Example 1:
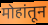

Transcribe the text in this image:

मोहांतून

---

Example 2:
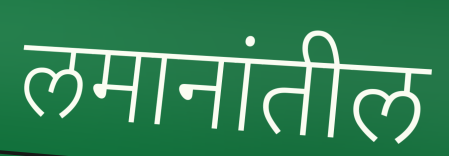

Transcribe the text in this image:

लमानांतील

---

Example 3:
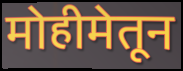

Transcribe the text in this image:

मोहीमेतून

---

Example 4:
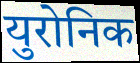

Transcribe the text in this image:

युरोनिक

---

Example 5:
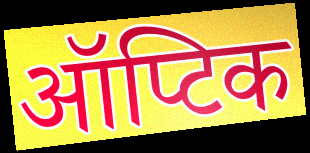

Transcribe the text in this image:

ऑप्टिक